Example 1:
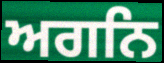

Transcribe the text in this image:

ਅਗਨਿ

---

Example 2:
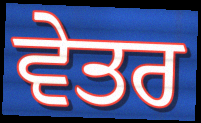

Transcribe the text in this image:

ਵੇਤਰ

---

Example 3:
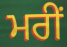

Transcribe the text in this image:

ਮਰੀਂ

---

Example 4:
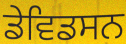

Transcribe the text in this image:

ਡੇਵਿਡਸਨ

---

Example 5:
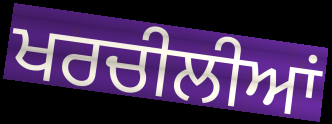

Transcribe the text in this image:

ਖਰਚੀਲੀਆਂ